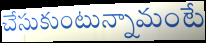
చేసుకుంటున్నామంటే